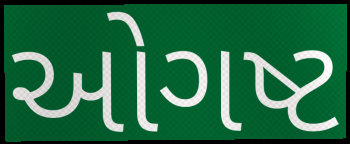
ઓગષ્ટ